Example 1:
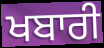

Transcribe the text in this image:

ਖਬਾਰੀ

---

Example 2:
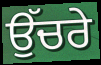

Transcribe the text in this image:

ਉੱਚਰੇ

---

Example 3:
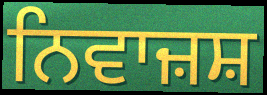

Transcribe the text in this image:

ਨਿਵਾਜ਼ਸ਼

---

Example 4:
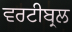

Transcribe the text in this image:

ਵਰਟੀਬ੍ਰਲ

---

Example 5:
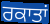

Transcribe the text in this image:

ਰਕਾਤਾਂ